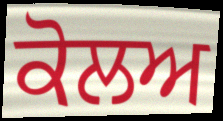
ਕੋਲਅ